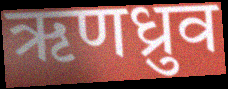
ॠणध्रुव